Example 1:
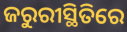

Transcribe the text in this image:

ଜରୁରୀସ୍ଥିତିରେ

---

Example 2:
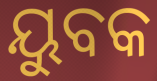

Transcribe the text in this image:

ୟୁବକ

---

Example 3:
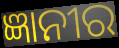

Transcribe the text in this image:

ଜ୍ଞାନୀର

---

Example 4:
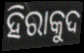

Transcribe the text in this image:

ହିରାକୁଦ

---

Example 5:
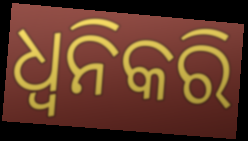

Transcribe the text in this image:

ଧ୍ୱନିକରି